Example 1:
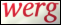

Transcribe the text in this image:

werg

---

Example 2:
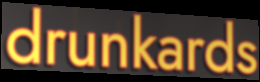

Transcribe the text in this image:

drunkards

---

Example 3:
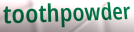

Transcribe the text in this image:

toothpowder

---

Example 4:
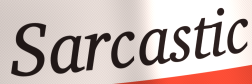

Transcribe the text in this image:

Sarcastic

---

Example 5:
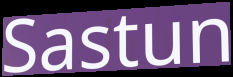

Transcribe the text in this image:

Sastun